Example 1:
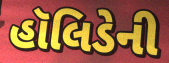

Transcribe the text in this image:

હૉલિડેની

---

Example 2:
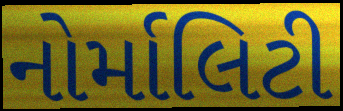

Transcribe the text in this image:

નોર્માલિટી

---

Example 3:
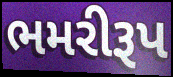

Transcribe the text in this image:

ભમરીરૂપ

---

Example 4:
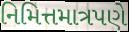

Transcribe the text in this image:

નિમિત્તમાત્રપણે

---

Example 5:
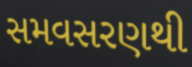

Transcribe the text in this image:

સમવસરણથી